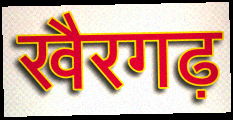
खैरगढ़